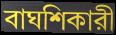
বাঘশিকারী